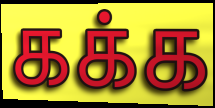
கக்க